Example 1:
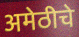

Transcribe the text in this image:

अमेठीचे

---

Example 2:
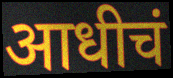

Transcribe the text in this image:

आधीचं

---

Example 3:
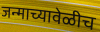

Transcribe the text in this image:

जन्माच्यावेळीच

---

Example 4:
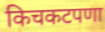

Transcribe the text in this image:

किचकटपणा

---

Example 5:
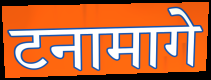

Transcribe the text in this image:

टनामागे